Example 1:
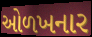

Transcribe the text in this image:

ઓળખનાર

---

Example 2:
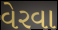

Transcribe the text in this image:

વેરવા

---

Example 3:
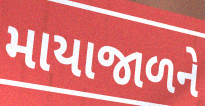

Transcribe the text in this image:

માયાજાળને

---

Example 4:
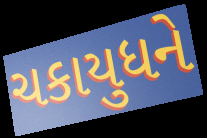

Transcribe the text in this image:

ચકાયુધને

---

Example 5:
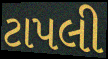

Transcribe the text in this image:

ટાપલી